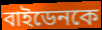
বাইডেনকে